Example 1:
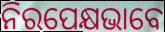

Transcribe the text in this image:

ନିରପେକ୍ଷଭାବେ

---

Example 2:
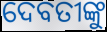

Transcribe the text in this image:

ଦେବତୀଙ୍କୁ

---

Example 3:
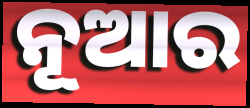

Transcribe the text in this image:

ନୂଆର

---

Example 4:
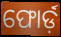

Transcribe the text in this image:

ଫୋର୍ଡ଼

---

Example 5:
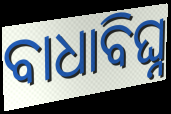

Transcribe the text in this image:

ବାଧାବିଘ୍ନ